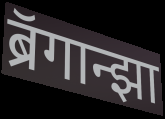
ब्रॅगान्झा